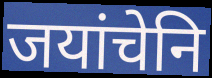
जयांचेनि